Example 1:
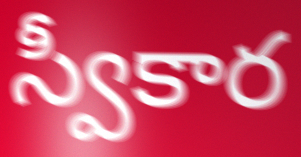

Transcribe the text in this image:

స్వీకార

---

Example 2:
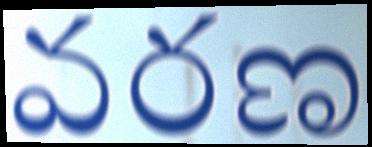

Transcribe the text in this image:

వరణ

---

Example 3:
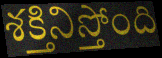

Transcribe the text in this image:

శక్తినిస్తోంది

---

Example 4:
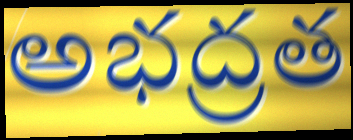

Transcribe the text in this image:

అభద్రత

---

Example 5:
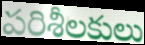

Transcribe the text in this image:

పరిశీలకులు